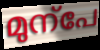
മുന്പേ